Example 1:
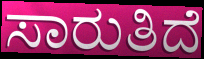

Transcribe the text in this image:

ಸಾರುತಿದೆ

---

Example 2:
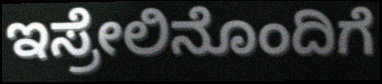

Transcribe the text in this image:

ಇಸ್ರೇಲಿನೊಂದಿಗೆ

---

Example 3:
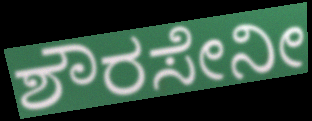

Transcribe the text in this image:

ಶೌರಸೇನೀ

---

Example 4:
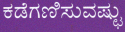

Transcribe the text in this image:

ಕಡೆಗಣಿಸುವಷ್ಟು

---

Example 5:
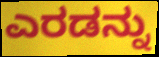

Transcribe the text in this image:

ಎರಡನ್ನು